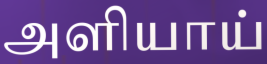
அளியாய்